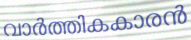
വാർത്തികകാരൻ